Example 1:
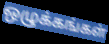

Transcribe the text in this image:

ஒழுக்கங்கள்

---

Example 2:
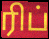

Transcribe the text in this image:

ரிப்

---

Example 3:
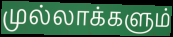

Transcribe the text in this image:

முல்லாக்களும்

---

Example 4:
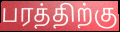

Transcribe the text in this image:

பரத்திற்கு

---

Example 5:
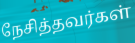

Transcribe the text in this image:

நேசித்தவர்கள்